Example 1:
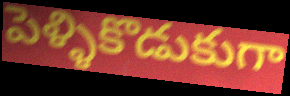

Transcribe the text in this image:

పెళ్ళికొడుకుగా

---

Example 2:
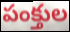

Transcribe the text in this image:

పంక్తుల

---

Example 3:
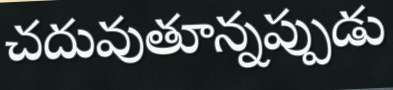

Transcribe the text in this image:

చదువుతూన్నప్పుడు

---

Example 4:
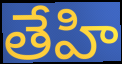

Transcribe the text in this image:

తేహి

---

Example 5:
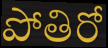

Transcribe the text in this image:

పోతిరో